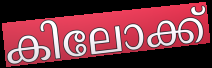
കിലോക്ക്